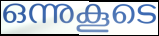
ഒന്നുകൂടെ